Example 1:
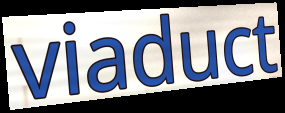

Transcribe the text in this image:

viaduct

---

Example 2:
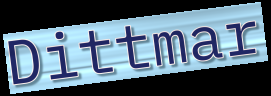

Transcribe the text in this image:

Dittmar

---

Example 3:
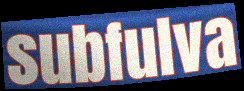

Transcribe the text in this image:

subfulva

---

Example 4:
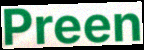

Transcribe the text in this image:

Preen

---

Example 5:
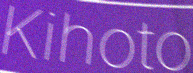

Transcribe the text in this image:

Kihoto